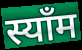
स्याँम